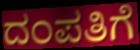
ದಂಪತಿಗೆ